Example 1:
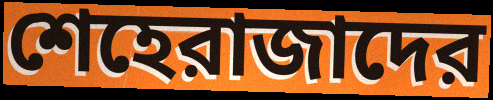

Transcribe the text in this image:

শেহেরাজাদের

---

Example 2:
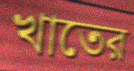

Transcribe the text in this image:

খাতের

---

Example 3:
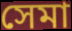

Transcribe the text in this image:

সেমা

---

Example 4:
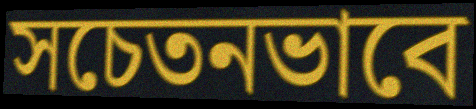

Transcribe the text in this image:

সচেতনভাবে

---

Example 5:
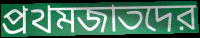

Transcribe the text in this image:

প্রথমজাতদের